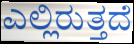
ಎಲ್ಲಿರುತ್ತದೆ